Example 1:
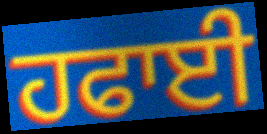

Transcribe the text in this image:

ਹਫਾਈ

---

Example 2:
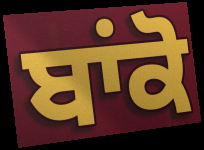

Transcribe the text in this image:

ਬਾਂਕੋ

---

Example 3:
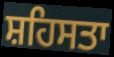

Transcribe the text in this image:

ਸ਼ਹਿਸਤਾ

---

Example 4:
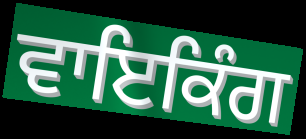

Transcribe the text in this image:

ਵਾਇਕਿੰਗ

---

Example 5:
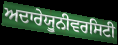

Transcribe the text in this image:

ਅਦਾਰੇਯੂਨੀਵਰਸਿਟੀ